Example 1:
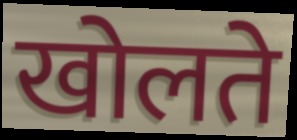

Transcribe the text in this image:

खोलते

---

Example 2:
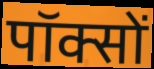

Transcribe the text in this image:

पॉक्सों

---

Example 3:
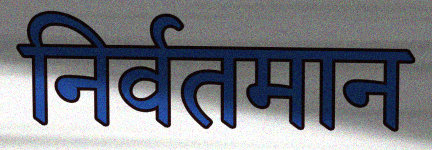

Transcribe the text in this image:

निर्वतमान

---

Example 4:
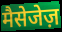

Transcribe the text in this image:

मैसेजेज़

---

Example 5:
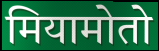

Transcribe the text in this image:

मियामोतो